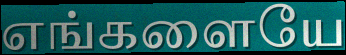
எங்களையே